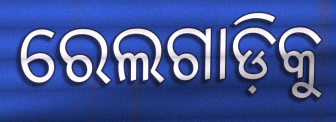
ରେଲଗାଡ଼ିକୁ